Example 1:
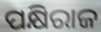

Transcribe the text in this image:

ପକ୍ଷିରାଜ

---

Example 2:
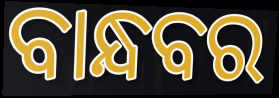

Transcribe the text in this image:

ବାନ୍ଧବର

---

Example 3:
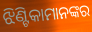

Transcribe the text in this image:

ଝିଣ୍ଟିକାମାନଙ୍କର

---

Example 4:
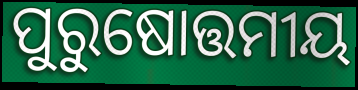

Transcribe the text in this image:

ପୁରୁଷୋତ୍ତମୀୟ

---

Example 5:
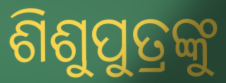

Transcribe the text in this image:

ଶିଶୁପୁତ୍ରଙ୍କୁ